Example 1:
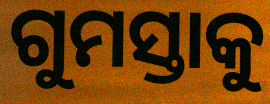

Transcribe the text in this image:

ଗୁମସ୍ତାକୁ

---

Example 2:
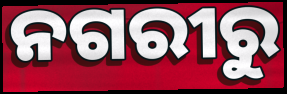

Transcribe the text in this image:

ନଗରୀରୁ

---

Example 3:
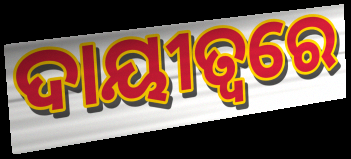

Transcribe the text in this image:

ଦାୟୀତ୍ଵରେ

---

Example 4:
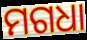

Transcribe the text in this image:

ମଗଧା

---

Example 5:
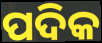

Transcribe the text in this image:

ପଦିକ